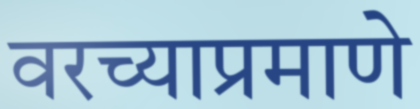
वरच्याप्रमाणे